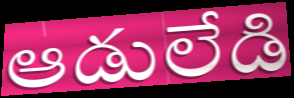
ఆడులేడి